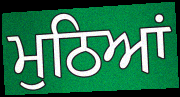
ਮੁਠਿਆਂ